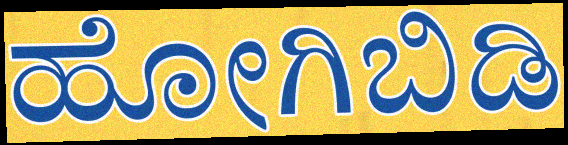
ಹೋಗಿಬಿಡಿ